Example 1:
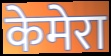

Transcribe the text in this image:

केमेरा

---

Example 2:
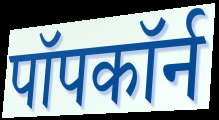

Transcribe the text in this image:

पॉपकॉर्न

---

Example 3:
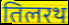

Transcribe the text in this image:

तिलरथ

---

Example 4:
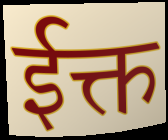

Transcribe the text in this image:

ईक्त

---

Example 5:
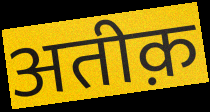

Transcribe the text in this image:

अतीक़